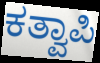
ಕತ್ವಾಪಿ